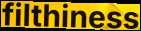
filthiness